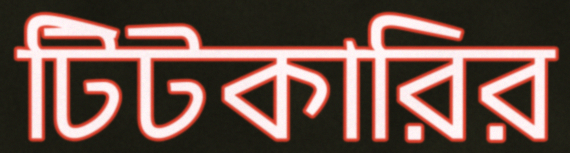
টিটকারির